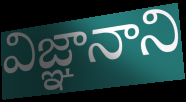
విజ్ఞానాని